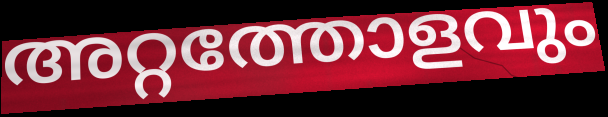
അറ്റത്തോളവും